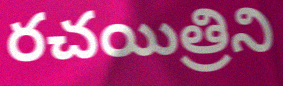
రచయిత్రిని